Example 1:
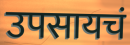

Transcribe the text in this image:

उपसायचं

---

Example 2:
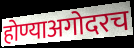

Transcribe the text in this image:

होण्याअगोदरच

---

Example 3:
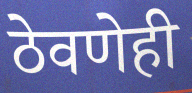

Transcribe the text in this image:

ठेवणेही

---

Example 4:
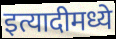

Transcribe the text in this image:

इत्यादीमध्ये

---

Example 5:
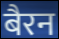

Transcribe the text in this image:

बैरन